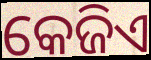
କେଜିଏ